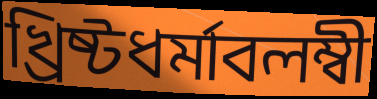
খ্রিষ্টধর্মাবলম্বী